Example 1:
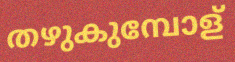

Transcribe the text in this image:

തഴുകുമ്പോള്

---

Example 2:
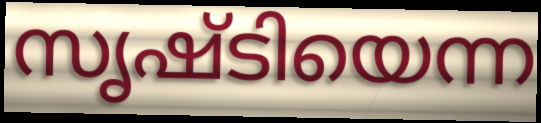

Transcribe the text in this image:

സൃഷ്ടിയെന്ന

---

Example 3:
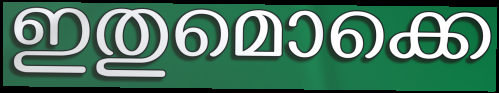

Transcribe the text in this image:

ഇതുമൊക്കെ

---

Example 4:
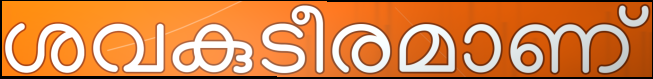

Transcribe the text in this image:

ശവകുടീരമാണ്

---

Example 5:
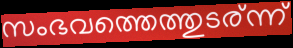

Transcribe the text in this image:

സംഭവത്തെത്തുടര്ന്ന്